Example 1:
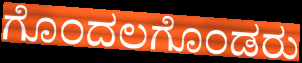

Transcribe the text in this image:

ಗೊಂದಲಗೊಂಡರು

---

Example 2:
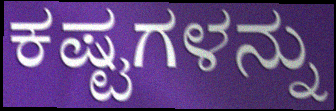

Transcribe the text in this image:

ಕಷ್ಟಗಳನ್ನು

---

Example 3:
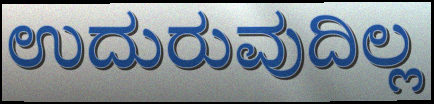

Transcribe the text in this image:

ಉದುರುವುದಿಲ್ಲ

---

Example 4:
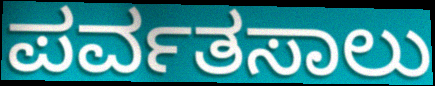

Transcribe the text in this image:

ಪರ್ವತಸಾಲು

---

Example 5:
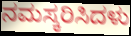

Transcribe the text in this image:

ನಮಸ್ಕರಿಸಿದಳು